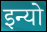
इन्यो